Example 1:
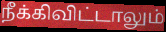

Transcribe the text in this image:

நீக்கிவிட்டாலும்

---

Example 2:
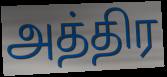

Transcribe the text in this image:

அத்திர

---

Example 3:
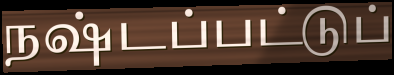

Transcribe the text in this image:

நஷ்டப்பட்டுப்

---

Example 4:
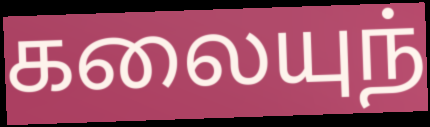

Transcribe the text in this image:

கலையுந்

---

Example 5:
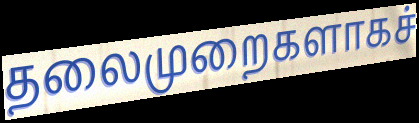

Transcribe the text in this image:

தலைமுறைகளாகச்